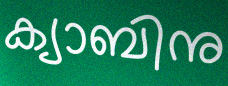
ക്യാബിനു